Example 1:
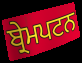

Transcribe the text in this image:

ਬ੍ਰੇਮਪਟਨ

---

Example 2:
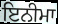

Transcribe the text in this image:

ਇਨੀਮਾ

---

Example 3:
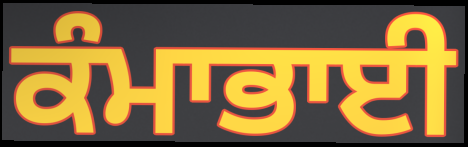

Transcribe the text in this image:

ਕੰਮਾਭਾਈ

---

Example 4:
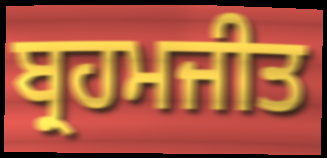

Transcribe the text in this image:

ਬ੍ਰਹਮਜੀਤ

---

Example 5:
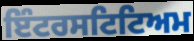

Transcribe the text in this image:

ਇੰਟਰਸਟਿਟਿਅਮ